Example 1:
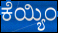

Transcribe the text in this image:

ಕೆಯ್ಯಿಂ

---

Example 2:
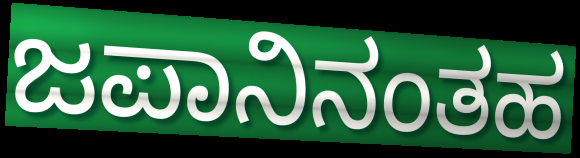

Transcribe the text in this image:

ಜಪಾನಿನಂತಹ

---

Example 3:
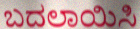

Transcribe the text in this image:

ಬದಲಾಯಿಸಿ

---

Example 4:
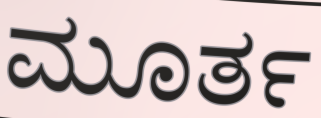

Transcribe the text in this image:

ಮೂರ್ತ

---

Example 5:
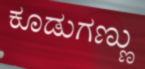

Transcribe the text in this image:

ಕೂಡುಗಣ್ಣು